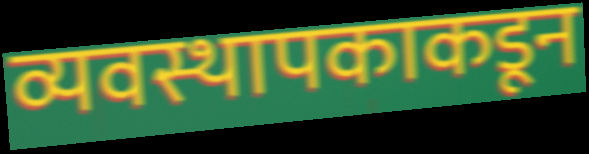
व्यवस्थापकाकडून